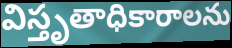
విస్తృతాధికారాలను